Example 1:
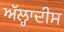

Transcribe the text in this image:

ਅੱਲ੍ਹਾਦੀਸ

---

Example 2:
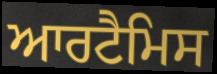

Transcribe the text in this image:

ਆਰਟੈਮਿਸ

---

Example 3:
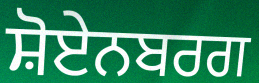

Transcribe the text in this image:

ਸ਼ੋਏਨਬਰਗ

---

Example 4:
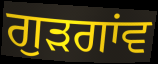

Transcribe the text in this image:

ਗੁੜਗਾਂਵ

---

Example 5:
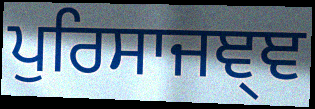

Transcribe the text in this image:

ਪੁਰਿਸਾਜਞ੍ਞ